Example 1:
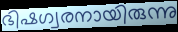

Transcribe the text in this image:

ഭിഷഗ്വരനായിരുന്നു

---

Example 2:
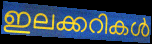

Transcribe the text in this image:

ഇലക്കറികൾ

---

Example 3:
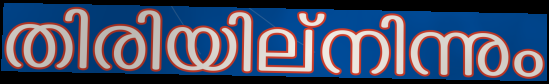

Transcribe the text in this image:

തിരിയില്നിന്നും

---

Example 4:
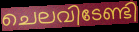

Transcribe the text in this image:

ചെലവിടേണ്ടി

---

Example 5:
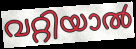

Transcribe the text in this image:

വറ്റിയാൽ